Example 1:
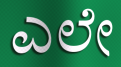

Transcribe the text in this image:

ಎಲೇ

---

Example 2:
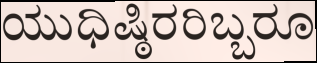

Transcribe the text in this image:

ಯುಧಿಷ್ಠಿರರಿಬ್ಬರೂ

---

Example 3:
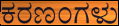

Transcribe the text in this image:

ಕರಣಂಗಳು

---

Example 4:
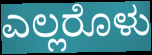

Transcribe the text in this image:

ಎಲ್ಲರೊಳು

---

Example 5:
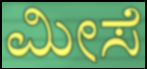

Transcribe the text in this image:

ಮೀಸೆ